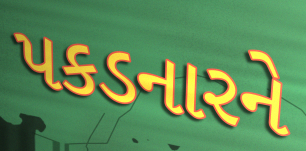
પકડનારને